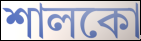
শালকো